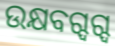
ଉକ୍ଷବଗ୍ଦଗ୍ଦ